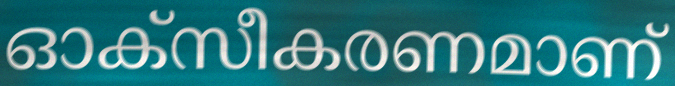
ഓക്സീകരണമാണ്